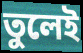
তুলেই